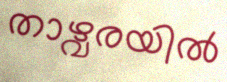
താഴ്വരയിൽ